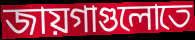
জায়গাগুলোতে